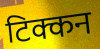
टिक्कन